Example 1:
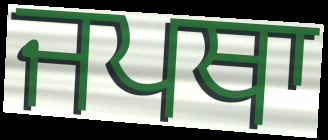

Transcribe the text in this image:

ਜਪਥਾ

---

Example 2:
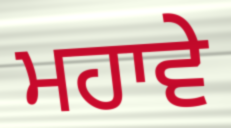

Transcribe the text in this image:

ਮਹਾਵੇ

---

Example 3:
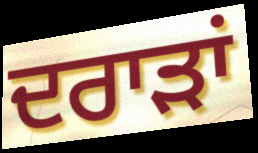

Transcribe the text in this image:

ਦਰਾੜਾਂ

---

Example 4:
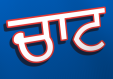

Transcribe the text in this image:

ਚਾਟ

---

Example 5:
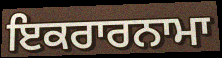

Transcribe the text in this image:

ਇਕਰਾਰਨਾਮਾ